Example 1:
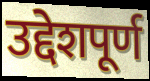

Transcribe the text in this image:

उद्देशपूर्ण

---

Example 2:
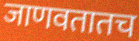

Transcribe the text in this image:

जाणवतातच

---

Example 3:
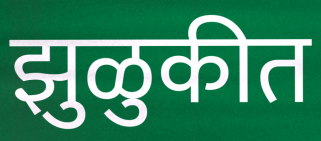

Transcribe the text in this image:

झुळुकीत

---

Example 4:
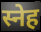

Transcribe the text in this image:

स्नेह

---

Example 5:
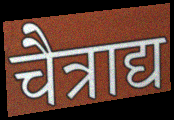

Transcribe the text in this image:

चैत्राद्य